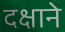
दक्षाने